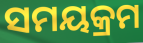
ସମୟକ୍ରମ